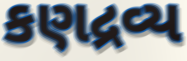
કણદ્રવ્ય